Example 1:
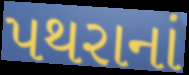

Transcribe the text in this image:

પથરાનાં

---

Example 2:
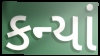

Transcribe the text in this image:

કન્યાં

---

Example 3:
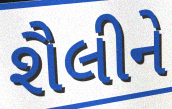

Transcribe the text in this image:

શૈલીને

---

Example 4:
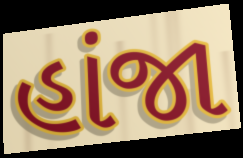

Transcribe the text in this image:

હાંજા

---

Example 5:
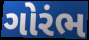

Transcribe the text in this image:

ગોરંભ